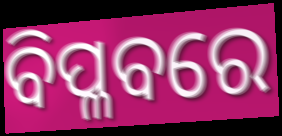
ବିପ୍ଳବରେ